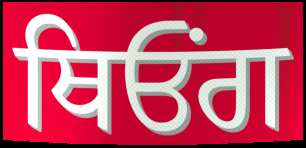
ਥਿਓਂਗ